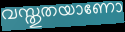
വസ്തുതയാണോ